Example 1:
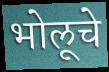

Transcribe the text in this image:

भोलूचे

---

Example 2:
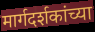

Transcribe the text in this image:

मार्गदर्शकांच्या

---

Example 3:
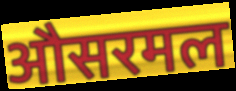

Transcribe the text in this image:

औसरमल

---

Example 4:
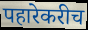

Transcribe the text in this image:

पहारेकरीच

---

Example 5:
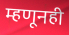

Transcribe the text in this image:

म्हणूनही